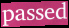
passed